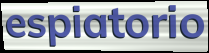
espiatorio